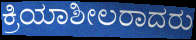
ಕ್ರಿಯಾಶೀಲರಾದರು